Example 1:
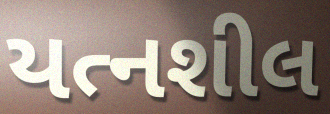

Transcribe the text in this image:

યત્નશીલ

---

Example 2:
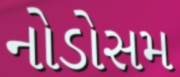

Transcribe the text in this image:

નોડોસમ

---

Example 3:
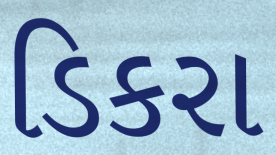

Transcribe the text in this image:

ડિકરા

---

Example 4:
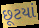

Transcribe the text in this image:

છૂટયાં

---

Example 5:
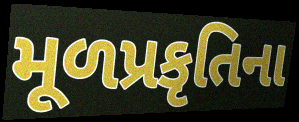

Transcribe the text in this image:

મૂળપ્રકૃતિના